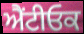
ਐਂਟੀਓਕ